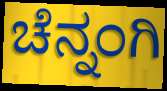
ಚೆನ್ನಂಗಿ